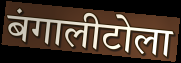
बंगालीटोला